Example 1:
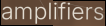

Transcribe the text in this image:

amplifiers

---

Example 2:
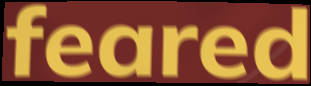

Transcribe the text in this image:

feared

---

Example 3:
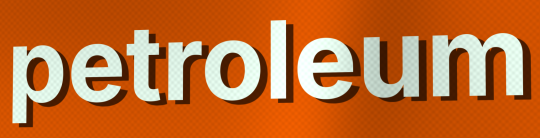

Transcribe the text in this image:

petroleum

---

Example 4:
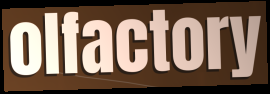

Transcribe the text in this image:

olfactory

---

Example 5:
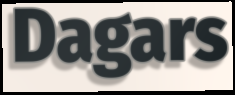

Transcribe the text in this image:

Dagars